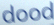
dood